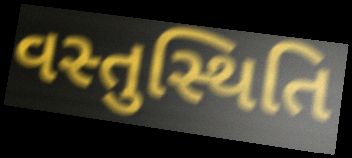
વસ્તુસ્થિતિ